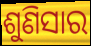
ଶୁଣିସାର